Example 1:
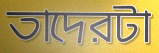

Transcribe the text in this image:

তাদেরটা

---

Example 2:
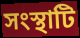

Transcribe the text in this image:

সংস্থাটি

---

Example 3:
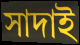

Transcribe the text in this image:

সাদাই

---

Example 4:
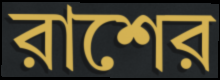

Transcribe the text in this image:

রাশের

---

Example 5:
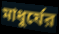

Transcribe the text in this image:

মাধুর্যের